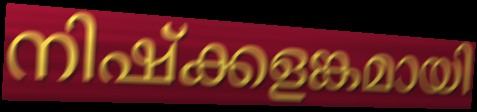
നിഷ്ക്കളങ്കമായി